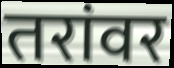
तरांवर